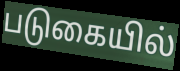
படுகையில்